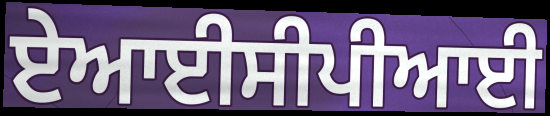
ਏਆਈਸੀਪੀਆਈ